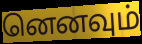
னெனவும்